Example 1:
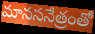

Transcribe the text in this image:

మానసనేత్రంతో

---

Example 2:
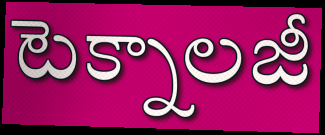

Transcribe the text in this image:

టెక్నాలజీ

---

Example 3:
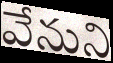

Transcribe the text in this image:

వేనుని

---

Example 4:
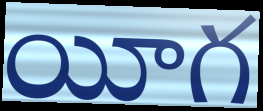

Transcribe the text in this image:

యీగ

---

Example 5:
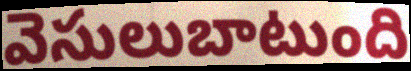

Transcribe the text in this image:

వెసులుబాటుంది